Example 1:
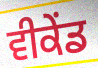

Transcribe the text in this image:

ਵੀਕੇਂਡ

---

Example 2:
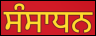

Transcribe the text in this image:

ਸੰਸਾਧਨ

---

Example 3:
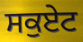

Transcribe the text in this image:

ਸਕੁਏਟ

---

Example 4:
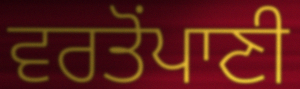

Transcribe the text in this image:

ਵਰਤੋਂਪਾਣੀ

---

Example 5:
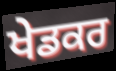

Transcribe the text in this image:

ਖੇਡਕਰ